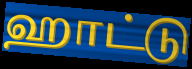
ஹாட்டு